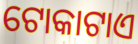
ଟୋକାଟାଏ